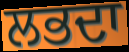
ਲਭਦਾ